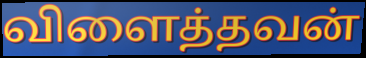
விளைத்தவன்